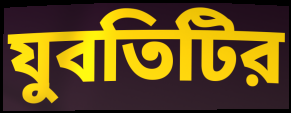
যুবতিটির